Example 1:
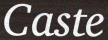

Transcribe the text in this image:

Caste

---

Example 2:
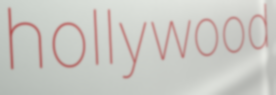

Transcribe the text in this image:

hollywood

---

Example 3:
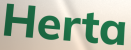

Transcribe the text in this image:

Herta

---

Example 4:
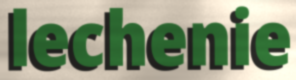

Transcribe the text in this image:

lechenie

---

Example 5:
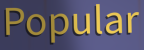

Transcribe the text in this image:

Popular